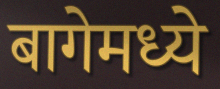
बागेमध्ये